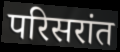
परिसरांत